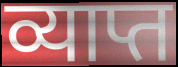
व्याप्त